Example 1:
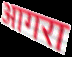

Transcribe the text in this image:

आगरा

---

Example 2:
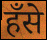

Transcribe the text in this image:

हँसे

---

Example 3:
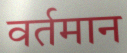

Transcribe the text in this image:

वर्तमान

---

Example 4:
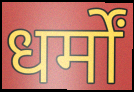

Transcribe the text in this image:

धर्मों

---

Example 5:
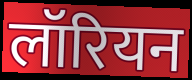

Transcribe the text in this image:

लॉरियन